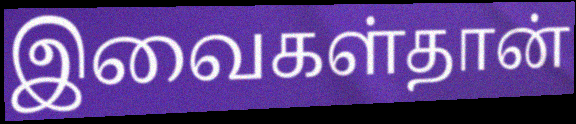
இவைகள்தான்